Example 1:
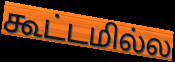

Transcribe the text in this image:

கூட்டமில்ல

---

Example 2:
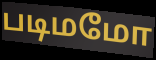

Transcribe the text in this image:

படிமமோ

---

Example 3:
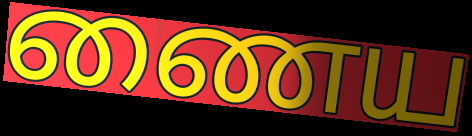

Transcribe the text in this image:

ணைய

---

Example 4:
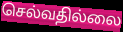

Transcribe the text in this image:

செல்வதில்லை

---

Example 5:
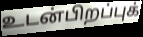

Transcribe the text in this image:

உடன்பிறப்புக்